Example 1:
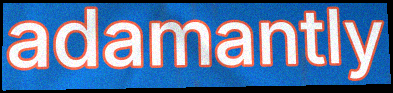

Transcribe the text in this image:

adamantly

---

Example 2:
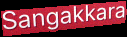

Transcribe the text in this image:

Sangakkara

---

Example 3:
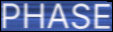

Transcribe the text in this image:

PHASE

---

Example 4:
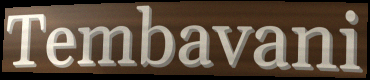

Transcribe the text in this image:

Tembavani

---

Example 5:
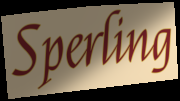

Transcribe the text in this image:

Sperling